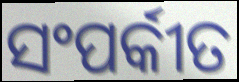
ସଂପର୍କୀତ